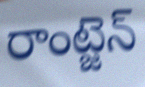
రాంట్జెన్